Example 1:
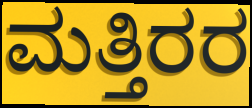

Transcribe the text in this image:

ಮತ್ತಿರರ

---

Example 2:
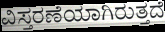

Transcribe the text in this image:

ವಿಸ್ತರಣೆಯಾಗಿರುತ್ತದೆ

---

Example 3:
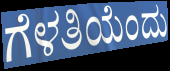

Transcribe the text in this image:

ಗೆಳತಿಯೆಂದು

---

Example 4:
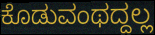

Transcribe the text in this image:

ಕೊಡುವಂಥದ್ದಲ್ಲ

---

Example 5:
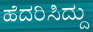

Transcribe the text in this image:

ಹೆದರಿಸಿದ್ದು